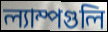
ল্যাম্পগুলি